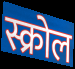
स्क्रोल